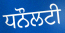
ਧਨੌਲਟੀ